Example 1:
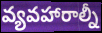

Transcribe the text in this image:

వ్యవహారాల్నీ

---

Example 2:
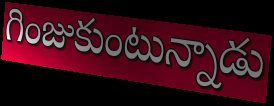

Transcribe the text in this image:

గింజుకుంటున్నాడు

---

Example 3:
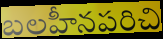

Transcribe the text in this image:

బలహీనపరిచి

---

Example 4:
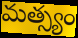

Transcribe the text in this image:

మత్స్యం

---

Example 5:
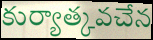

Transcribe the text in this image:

కుర్యాత్కవచేన